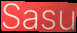
Sasu